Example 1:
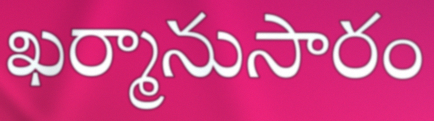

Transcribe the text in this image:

ఖర్మానుసారం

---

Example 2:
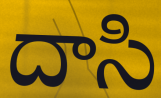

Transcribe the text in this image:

దాసి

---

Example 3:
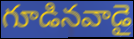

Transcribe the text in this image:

గూడినవాడై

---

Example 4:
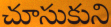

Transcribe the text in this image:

చూసుకుని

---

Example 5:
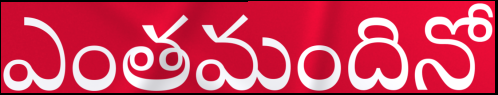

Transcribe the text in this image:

ఎంతమందినో